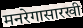
मनरेगासारखी